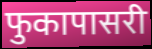
फुकापासरी